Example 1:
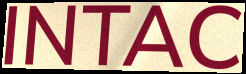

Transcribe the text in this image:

INTAC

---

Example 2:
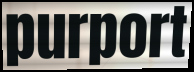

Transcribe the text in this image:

purport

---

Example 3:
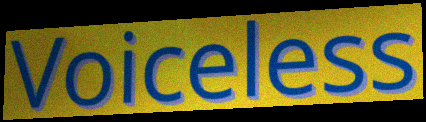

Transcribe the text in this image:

Voiceless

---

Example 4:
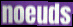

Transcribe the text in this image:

noeuds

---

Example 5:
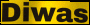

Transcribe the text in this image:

Diwas